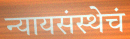
न्यायसंस्थेचं